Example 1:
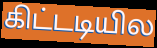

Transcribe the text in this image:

கிட்டடியில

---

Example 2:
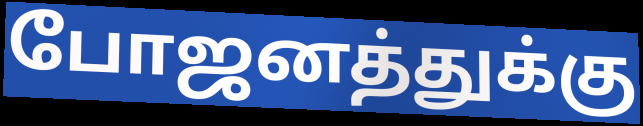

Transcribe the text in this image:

போஜனத்துக்கு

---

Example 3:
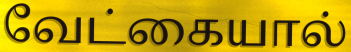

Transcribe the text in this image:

வேட்கையால்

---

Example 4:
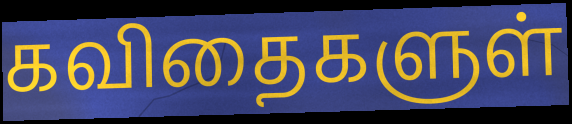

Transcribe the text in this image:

கவிதைகளுள்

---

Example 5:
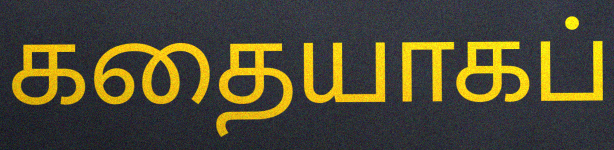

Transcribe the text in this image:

கதையாகப்